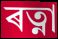
ৰত্না